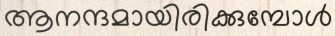
ആനന്ദമായിരിക്കുമ്പോൾ